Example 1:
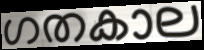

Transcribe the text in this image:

ഗതകാല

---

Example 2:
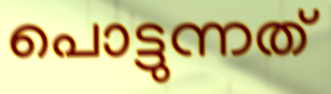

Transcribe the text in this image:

പൊട്ടുന്നത്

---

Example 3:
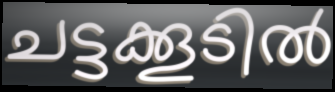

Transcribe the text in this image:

ചട്ടക്കൂടിൽ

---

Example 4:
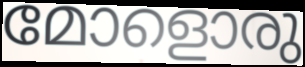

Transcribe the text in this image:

മോളൊരു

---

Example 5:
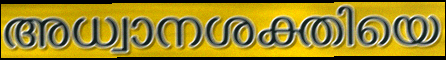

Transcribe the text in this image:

അധ്വാനശക്തിയെ